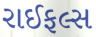
રાઈફલ્સ